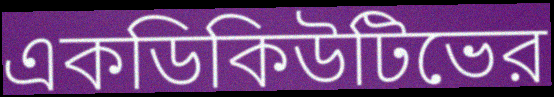
একডিকিউটিভের